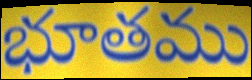
భూతము